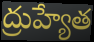
ద్రుహ్యేత